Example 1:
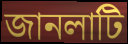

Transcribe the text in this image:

জানলাটি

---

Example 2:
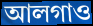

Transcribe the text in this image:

আলগাও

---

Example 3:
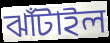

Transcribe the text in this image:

ঝাঁটাইল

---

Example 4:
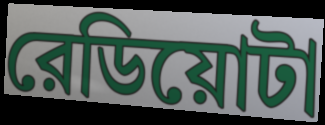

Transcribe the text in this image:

রেডিয়োটা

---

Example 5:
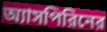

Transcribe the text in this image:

অ্যাসপিরিনের